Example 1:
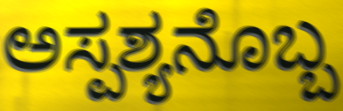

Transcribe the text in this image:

ಅಸ್ಪಶ್ಯನೊಬ್ಬ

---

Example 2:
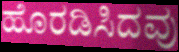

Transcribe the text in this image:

ಹೊರಡಿಸಿದವು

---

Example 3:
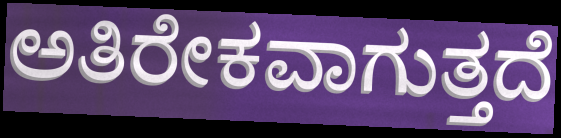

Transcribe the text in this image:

ಅತಿರೇಕವಾಗುತ್ತದೆ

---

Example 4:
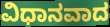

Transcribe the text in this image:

ವಿಧಾನವಾದ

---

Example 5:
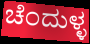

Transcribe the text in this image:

ಚೆಂದುಳ್ಳ